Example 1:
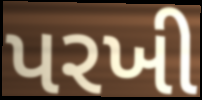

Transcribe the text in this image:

પરખી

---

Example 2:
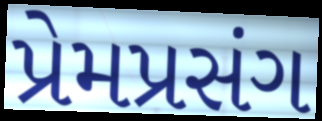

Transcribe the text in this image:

પ્રેમપ્રસંગ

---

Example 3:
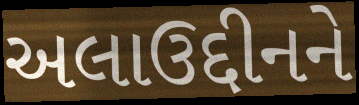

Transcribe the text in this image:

અલાઉદ્દીનને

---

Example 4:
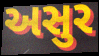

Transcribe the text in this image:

અસુર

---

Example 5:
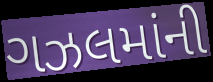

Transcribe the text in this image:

ગઝલમાંની